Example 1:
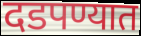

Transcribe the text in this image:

दडपण्यात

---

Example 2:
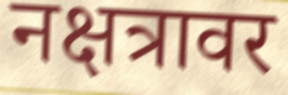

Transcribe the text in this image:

नक्षत्रावर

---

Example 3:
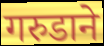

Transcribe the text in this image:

गरुडाने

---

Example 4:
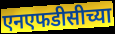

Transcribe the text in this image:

एनएफडीसीच्या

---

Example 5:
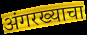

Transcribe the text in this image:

अंगरख्याचा